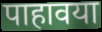
पाहावया